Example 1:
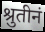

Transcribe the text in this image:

श्रुतीनं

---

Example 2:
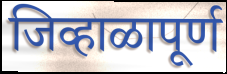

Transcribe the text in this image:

जिव्हाळापूर्ण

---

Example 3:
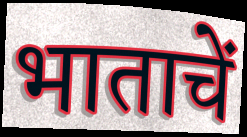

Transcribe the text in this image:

भाताचें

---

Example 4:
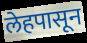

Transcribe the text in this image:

लेहपासून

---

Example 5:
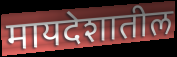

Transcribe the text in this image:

मायदेशातील